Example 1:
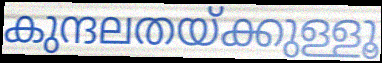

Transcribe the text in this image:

കുന്ദലതയ്ക്കുള്ളൂ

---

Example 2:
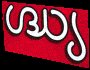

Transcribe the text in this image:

ഗ്ദ്ധ്യ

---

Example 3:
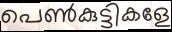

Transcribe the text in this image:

പെൺകുട്ടികളേ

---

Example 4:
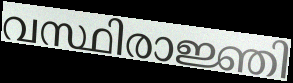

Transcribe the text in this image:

വസ്ഥിരാജ്ഞി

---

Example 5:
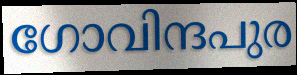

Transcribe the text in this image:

ഗോവിന്ദപുര